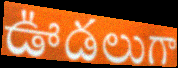
ఊడలుగా